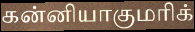
கன்னியாகுமரிக்